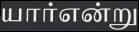
யார்என்று